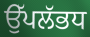
ਉੱਪਲੱਭਧ